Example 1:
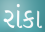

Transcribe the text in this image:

રાંકા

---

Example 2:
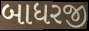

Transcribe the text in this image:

બાધરજી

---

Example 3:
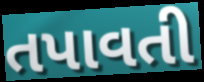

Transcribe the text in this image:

તપાવતી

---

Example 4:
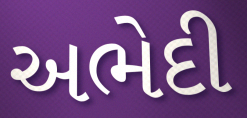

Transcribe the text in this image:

અભેદી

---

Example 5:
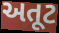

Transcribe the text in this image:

અતૂટ